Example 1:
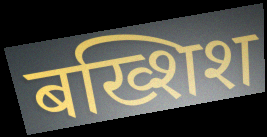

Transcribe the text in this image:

बख्शिश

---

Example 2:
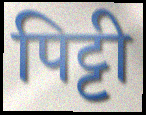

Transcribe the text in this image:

पिट्टी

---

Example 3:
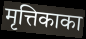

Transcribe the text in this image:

मृत्तिकाका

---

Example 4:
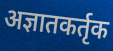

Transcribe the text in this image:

अज्ञातकर्तृक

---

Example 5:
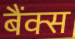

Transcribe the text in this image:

बैंक्स